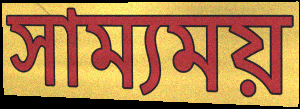
সাম্যময়